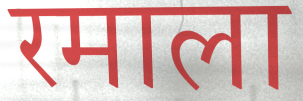
रमाला